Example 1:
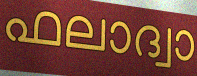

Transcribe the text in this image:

ഫലാദ്വാ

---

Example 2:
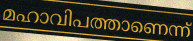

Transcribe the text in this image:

മഹാവിപത്താണെന്ന്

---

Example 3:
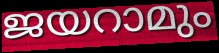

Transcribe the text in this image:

ജയറാമും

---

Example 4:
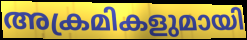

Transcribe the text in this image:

അക്രമികളുമായി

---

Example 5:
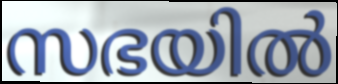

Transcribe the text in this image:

സഭയിൽ